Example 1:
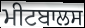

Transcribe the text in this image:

ਮੀਟਬਾਲਸ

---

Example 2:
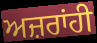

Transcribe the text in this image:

ਅਜ਼ਰਾਂਹੀ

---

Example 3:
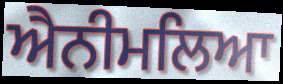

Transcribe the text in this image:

ਐਨੀਮਲਿਆ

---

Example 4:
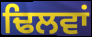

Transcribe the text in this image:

ਢਿਲਵਾਂ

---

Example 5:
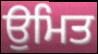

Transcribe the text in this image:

ਉਮਿਤ